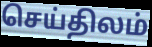
செய்திலம்